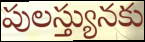
పులస్త్యునకు